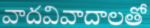
వాదవివాదాలతో